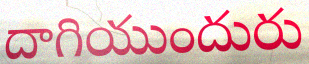
దాగియుందురు